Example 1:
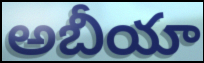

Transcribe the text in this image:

అబీయా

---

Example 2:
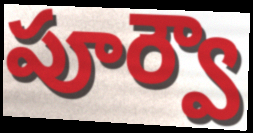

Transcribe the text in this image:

పూర్వౌ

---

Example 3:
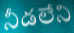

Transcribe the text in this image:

నీడలేని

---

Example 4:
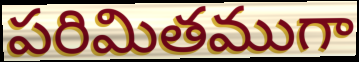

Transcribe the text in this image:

పరిమితముగా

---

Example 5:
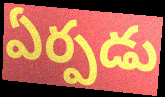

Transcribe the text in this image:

ఏర్పడు